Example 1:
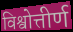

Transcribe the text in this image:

विश्वोत्तीर्ण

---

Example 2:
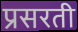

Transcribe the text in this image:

प्रसरती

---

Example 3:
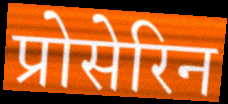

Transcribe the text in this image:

प्रोसेरिन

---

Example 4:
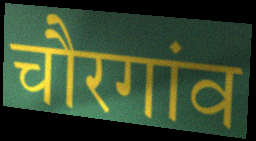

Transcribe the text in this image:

चौरगांव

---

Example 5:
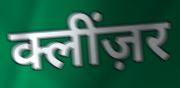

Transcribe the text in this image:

क्लींज़र